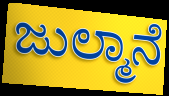
ಜುಲ್ಮಾನೆ